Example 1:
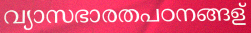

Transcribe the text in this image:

വ്യാസഭാരതപഠനങ്ങള്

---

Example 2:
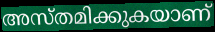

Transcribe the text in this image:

അസ്തമിക്കുകയാണ്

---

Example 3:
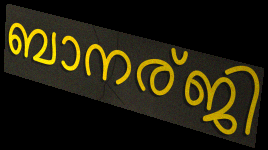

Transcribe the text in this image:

ബാനര്ജി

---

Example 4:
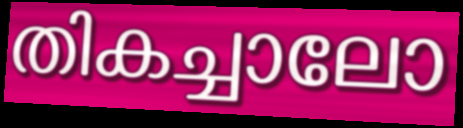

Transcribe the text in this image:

തികച്ചാലോ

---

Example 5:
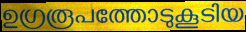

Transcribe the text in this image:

ഉഗ്രരൂപത്തോടുകൂടിയ